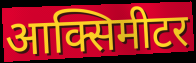
आक्सिमीटर